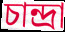
চান্দ্রা